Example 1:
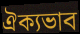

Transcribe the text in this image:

ঐক্যভাব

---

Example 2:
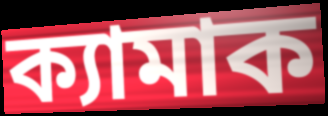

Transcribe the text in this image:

ক্যামাক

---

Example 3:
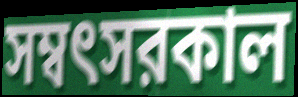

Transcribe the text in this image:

সম্বৎসরকাল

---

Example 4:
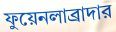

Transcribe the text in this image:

ফুয়েনলাব্রাদার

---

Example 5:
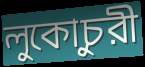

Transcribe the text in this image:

লুকোচুরী